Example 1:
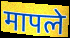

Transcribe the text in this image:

मापले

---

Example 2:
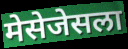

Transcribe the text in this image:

मेसेजेसला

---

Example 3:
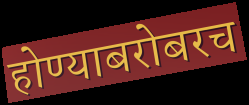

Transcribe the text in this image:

होण्याबरोबरच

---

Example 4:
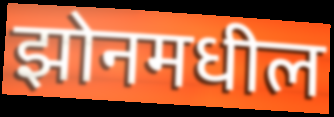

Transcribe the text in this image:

झोनमधील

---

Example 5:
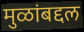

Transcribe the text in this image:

मुळांबद्दल